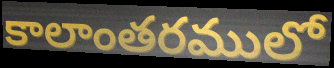
కాలాంతరములో